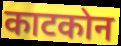
काटकोन